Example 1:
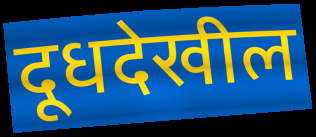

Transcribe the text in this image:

दूधदेखील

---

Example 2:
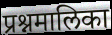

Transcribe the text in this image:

प्रश्नमालिका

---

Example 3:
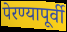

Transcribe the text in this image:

पेरण्यापूर्वी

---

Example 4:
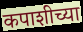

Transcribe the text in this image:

कपाशीच्या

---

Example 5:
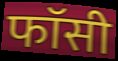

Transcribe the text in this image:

फॉसी